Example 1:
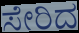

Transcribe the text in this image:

ಸೇರಿದ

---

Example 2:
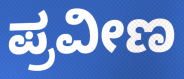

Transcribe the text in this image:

ಪ್ರವೀಣ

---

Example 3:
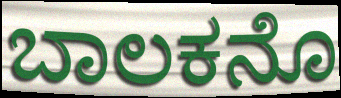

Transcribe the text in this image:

ಬಾಲಕನೊ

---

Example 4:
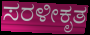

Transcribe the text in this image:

ಸರಳೀಕೃತ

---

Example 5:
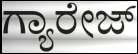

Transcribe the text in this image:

ಗ್ಯಾರೇಜ್